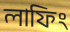
লাফিং